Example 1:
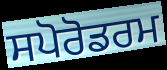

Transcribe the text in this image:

ਸਪੋਰੋਡਰਮ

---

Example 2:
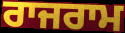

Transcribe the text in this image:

ਰਾਜਰਾਮ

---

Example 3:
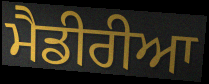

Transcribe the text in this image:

ਮੈਡੀਰੀਆ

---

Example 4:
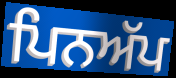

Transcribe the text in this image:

ਪਿਨਅੱਪ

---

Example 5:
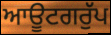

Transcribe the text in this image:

ਆਊਟਗਰੁੱਪ